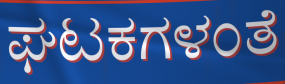
ಘಟಕಗಳಂತೆ